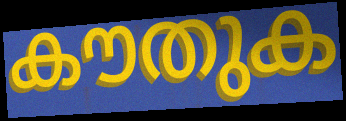
കൗതുക